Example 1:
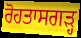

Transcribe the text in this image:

ਰੋਹਤਾਸਗੜ੍ਹ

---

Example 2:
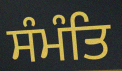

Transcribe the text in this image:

ਸੰਮੰਤਿ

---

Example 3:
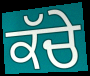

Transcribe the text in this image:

ਕੱਚੇ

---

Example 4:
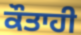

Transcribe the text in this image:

ਕੌਤਾਹੀ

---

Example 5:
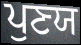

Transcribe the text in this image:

ਪੁਣਯ